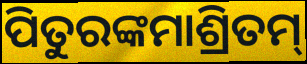
ପିତୁରଙ୍କମାଶ୍ରିତମ୍